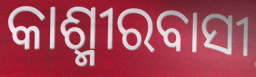
କାଶ୍ମୀରବାସୀ